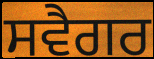
ਸਵੈਗਰ